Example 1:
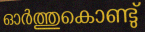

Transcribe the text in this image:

ഓർത്തുകൊണ്ടു്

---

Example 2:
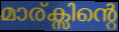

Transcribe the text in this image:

മാര്ക്സിന്റെ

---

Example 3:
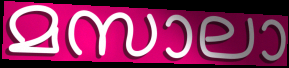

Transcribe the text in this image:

മസാലാ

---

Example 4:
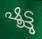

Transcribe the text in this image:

ഷൂട്ടു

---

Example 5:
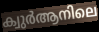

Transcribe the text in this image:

ക്വുർആനിലെ